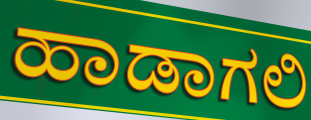
ಹಾಡಾಗಲಿ